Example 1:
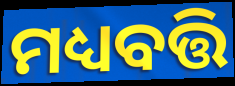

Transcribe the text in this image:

ମଧ୍ୟବତ୍ତି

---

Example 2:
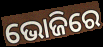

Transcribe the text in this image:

ଭୋଜିରେ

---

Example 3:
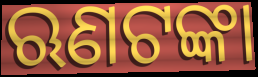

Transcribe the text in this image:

ଋଣଟଙ୍କା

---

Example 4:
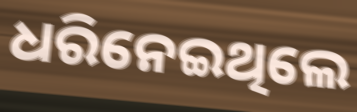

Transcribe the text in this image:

ଧରିନେଇଥିଲେ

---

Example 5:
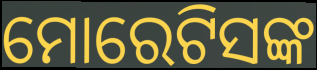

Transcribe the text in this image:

ମୋରେଟିସଙ୍କ